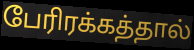
பேரிரக்கத்தால்